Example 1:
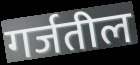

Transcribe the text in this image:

गर्जतील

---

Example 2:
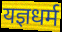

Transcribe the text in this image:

यज्ञधर्म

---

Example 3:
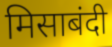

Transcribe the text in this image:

मिसाबंदी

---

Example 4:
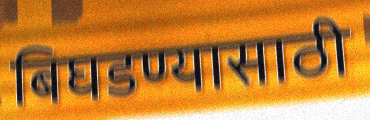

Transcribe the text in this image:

बिघडण्यासाठी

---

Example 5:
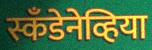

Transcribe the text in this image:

स्कॅंडेनेव्हिया